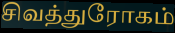
சிவத்துரோகம்